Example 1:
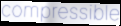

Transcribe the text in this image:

compressible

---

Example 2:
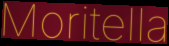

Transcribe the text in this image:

Moritella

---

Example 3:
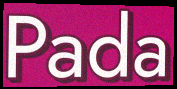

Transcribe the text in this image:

Pada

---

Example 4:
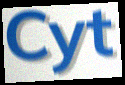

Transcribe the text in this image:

Cyt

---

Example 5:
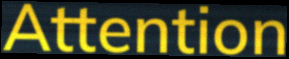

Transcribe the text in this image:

Attention